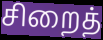
சிறைத்